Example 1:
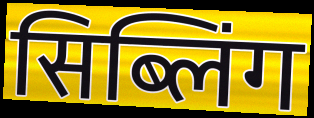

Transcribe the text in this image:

सिब्लिंग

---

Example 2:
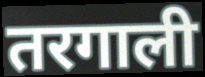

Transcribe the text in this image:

तरगाली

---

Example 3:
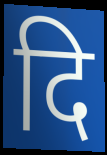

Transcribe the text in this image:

दि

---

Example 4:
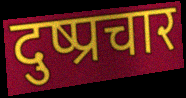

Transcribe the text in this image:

दुष्‍प्रचार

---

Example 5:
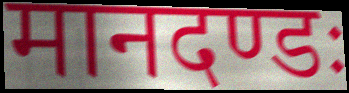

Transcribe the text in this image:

मानदण्डः